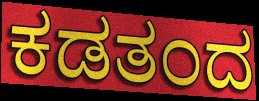
ಕಡತಂದ